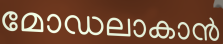
മോഡലാകാൻ